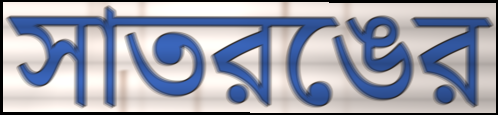
সাতরঙের